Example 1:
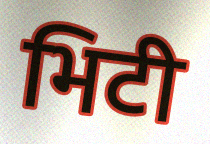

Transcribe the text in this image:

भिटी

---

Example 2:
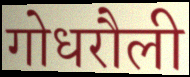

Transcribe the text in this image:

गोधरौली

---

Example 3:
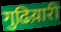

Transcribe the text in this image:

गुढिय़ारी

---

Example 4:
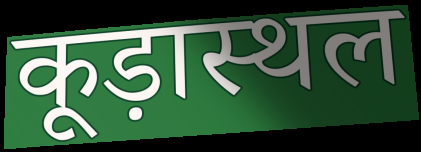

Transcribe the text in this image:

कूड़ास्थल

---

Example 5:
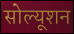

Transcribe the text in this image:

सोल्यूशन